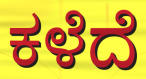
ಕಳೆದೆ